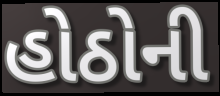
હોઠોની